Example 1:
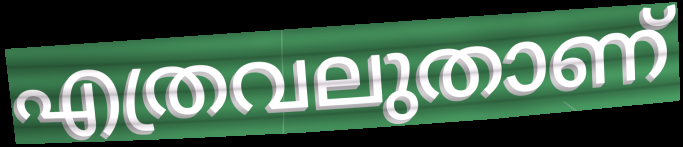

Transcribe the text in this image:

എത്രവലുതാണ്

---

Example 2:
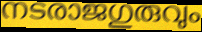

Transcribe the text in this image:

നടരാജഗുരുവും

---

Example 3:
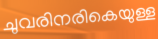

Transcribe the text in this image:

ചുവരിനരികെയുള്ള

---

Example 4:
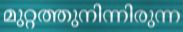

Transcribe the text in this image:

മുറ്റത്തുനിന്നിരുന്ന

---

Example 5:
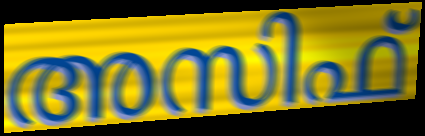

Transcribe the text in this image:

അസിഫ്